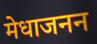
मेधाजनन